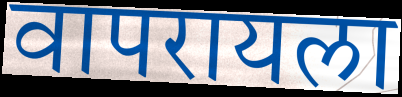
वापरायला